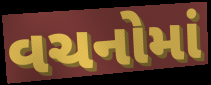
વચનોમાં